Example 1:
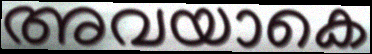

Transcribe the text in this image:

അവയാകെ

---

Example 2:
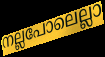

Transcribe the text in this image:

നല്ലപോലെല്ലാ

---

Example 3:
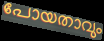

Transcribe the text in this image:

പോയതാവും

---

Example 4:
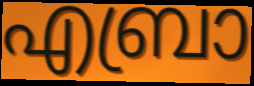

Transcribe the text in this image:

എബ്രാ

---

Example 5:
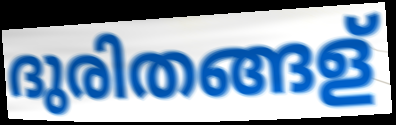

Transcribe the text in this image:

ദുരിതങ്ങള്